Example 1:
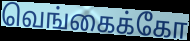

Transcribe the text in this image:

வெங்கைக்கோ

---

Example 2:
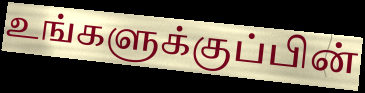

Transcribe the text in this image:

உங்களுக்குப்பின்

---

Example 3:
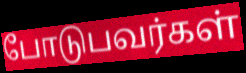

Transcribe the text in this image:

போடுபவர்கள்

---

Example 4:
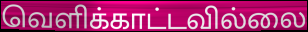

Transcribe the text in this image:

வெளிக்காட்டவில்லை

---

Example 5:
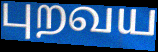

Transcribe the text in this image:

புறவய